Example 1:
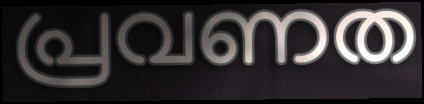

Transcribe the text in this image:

പ്രവണത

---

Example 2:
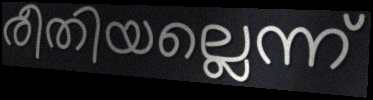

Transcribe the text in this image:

രീതിയല്ലെന്ന്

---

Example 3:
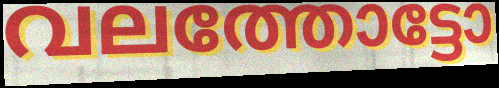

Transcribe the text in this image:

വലത്തോട്ടോ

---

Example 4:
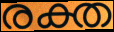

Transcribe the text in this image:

രക്ത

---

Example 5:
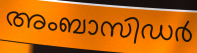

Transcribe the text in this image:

അംബാസിഡർ